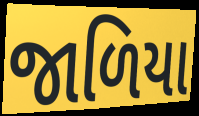
જાળિયા